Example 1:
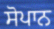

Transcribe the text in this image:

ਸੋਪਾਨ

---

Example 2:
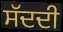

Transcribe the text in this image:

ਸੱਦਦੀ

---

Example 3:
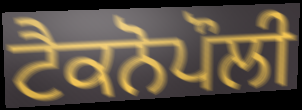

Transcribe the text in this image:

ਟੈਕਨੋਪੌਲੀ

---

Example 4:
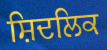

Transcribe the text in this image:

ਸ਼ਿਦਲਿਕ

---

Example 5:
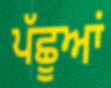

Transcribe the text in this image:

ਪੱਛੂਆਂ